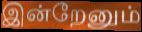
இன்றேனும்